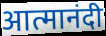
आत्मानंदी